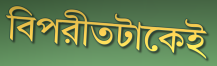
বিপরীতটাকেই